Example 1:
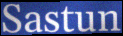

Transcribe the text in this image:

Sastun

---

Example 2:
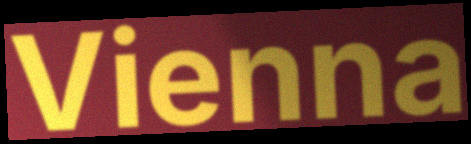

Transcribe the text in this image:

Vienna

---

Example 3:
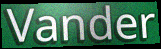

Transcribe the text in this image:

Vander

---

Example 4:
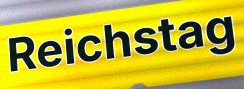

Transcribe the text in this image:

Reichstag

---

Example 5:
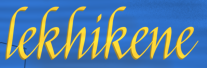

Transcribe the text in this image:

lekhikene